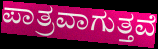
ಪಾತ್ರವಾಗುತ್ತವೆ